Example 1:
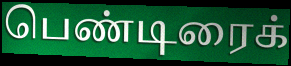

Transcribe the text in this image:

பெண்டிரைக்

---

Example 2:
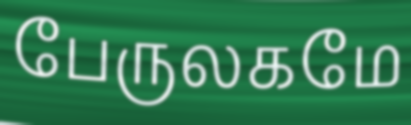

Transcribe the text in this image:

பேருலகமே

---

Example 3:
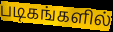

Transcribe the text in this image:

படிகங்களில்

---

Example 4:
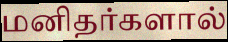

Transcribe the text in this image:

மனிதர்களால்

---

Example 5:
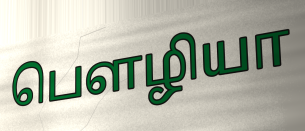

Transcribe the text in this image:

பௌழியா